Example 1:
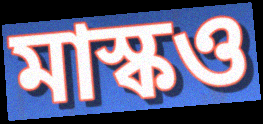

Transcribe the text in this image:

মাস্কও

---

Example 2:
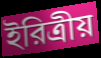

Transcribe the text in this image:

ইরিত্রীয়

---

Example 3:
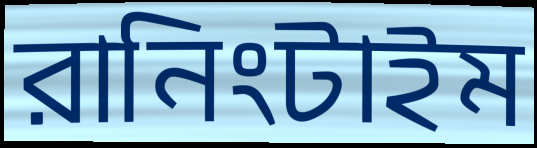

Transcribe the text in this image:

রানিংটাইম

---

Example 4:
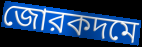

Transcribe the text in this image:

জোরকদমে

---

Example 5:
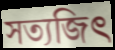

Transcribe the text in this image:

সত্যজিৎ